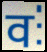
वः॑